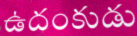
ఉదంకుడు